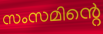
സംസമിന്റെ